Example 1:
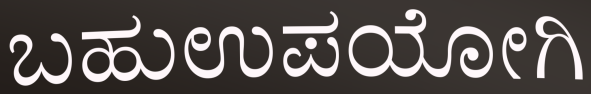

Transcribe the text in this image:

ಬಹುಉಪಯೋಗಿ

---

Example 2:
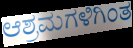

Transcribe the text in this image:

ಆಶ್ರಮಗಳಿಗಿಂತ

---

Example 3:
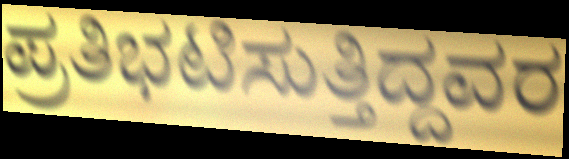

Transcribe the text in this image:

ಪ್ರತಿಭಟಿಸುತ್ತಿದ್ದವರ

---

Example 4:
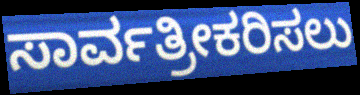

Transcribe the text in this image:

ಸಾರ್ವತ್ರೀಕರಿಸಲು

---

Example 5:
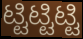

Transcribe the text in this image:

ಟ್ಟಿಟ್ಟಿಟ್ಟಿ